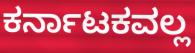
ಕರ್ನಾಟಕವಲ್ಲ